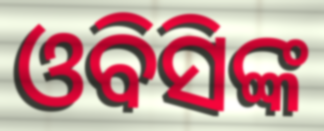
ଓବିସିଙ୍କ